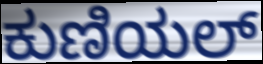
ಕುಣಿಯಲ್